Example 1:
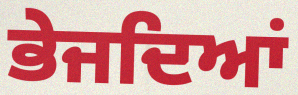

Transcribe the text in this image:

ਭੇਜਦਿਆਂ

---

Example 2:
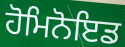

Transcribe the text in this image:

ਹੋਮਿਨੋਇਡ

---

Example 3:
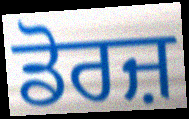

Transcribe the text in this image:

ਡੋਰਜ਼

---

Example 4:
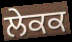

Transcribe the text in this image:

ਲੇਕਕ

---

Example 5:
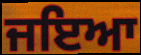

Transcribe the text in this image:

ਜਇਆ